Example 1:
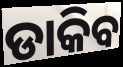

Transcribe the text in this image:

ଡାକିବ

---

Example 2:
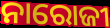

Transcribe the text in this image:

ନାରୋଜୀ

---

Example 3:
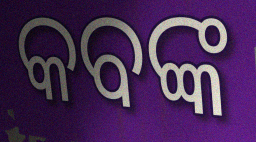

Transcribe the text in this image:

କବଙ୍କ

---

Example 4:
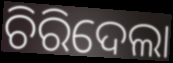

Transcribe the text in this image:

ଚିରିଦେଲା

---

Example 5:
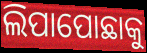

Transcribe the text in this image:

ଲିପାପୋଛାକୁ